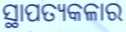
ସ୍ଥାପତ୍ୟକଳାର